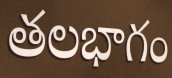
తలభాగం